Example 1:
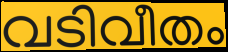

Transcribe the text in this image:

വടിവീതം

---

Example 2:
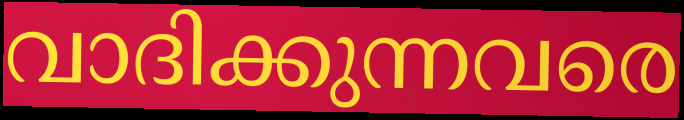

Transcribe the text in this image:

വാദിക്കുന്നവരെ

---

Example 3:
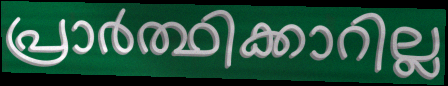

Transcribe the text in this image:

പ്രാർത്ഥിക്കാറില്ല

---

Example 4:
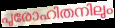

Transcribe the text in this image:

പുരോഹിതനിലും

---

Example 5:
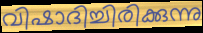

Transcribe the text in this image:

വിഷാദിച്ചിരിക്കുന്നു